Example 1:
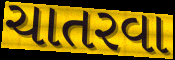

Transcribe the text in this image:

ચાતરવા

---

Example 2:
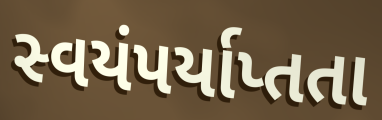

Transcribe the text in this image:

સ્વયંપર્યાપ્તતા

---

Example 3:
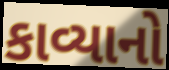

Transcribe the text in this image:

કાવ્યાનો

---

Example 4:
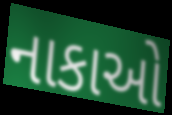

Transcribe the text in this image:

નાકાઓ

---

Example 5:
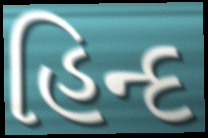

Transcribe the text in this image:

હિન્દ